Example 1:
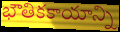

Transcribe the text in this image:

భౌతికకాయాన్ని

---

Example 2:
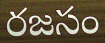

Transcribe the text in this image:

రజసం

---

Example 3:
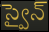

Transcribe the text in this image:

స్వైన్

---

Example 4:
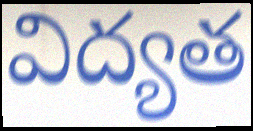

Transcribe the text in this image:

విద్యత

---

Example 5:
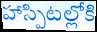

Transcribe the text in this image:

హాస్పిటల్లోకి